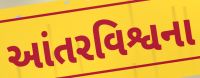
આંતરવિશ્વના